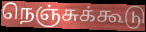
நெஞ்சுக்கூடு